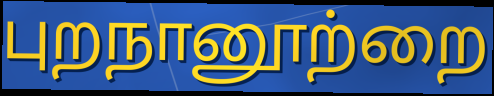
புறநானூற்றை